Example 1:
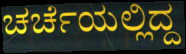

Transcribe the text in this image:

ಚರ್ಚೆಯಲ್ಲಿದ್ದ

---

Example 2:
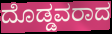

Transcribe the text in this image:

ದೊಡ್ಡವರಾದ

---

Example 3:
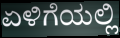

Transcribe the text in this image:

ಏಳಿಗೆಯಲ್ಲಿ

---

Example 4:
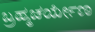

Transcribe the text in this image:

ಬ್ರಹ್ಮಚರ್ಯೇಣ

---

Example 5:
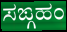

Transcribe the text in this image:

ಸಙ್ಗಹಂ